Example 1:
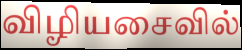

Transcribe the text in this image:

விழியசைவில்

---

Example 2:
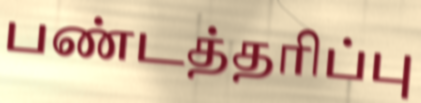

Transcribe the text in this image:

பண்டத்தரிப்பு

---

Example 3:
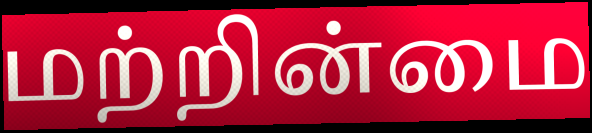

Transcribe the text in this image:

மற்றின்மை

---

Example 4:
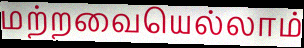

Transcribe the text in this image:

மற்றவையெல்லாம்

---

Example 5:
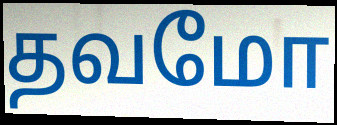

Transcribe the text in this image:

தவமோ